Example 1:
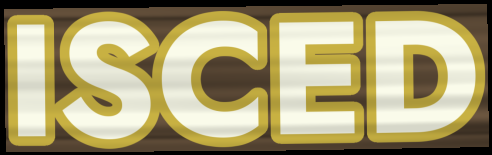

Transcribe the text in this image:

ISCED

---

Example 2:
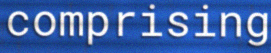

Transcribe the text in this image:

comprising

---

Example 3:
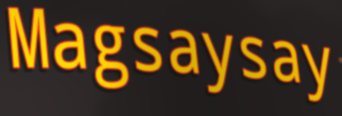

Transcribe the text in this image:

Magsaysay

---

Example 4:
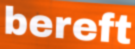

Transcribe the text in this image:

bereft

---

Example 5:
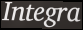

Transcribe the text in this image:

Integra